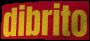
dibrito